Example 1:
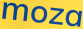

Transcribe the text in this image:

moza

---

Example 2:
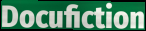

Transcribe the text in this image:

Docufiction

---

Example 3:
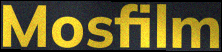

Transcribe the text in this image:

Mosfilm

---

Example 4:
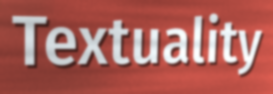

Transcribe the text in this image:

Textuality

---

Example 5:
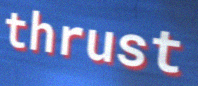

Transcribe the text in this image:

thrust